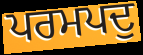
ਪਰਮਪਦੁ